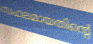
സഫലമായതിന്റെ